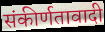
संकीर्णतावादी